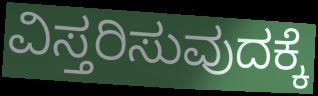
ವಿಸ್ತರಿಸುವುದಕ್ಕೆ